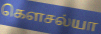
கௌசல்யா